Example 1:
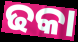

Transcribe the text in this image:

ଢକା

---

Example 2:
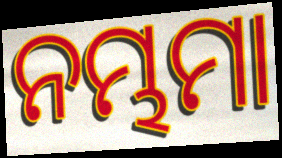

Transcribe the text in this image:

ନମ୍ଭମା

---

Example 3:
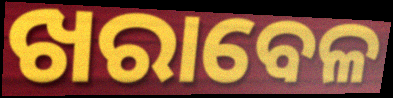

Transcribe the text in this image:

ଖରାବେଳ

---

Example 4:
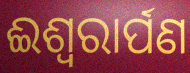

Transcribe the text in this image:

ଈଶ୍ୱରାର୍ପଣ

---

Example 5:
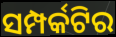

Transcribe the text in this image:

ସମ୍ପର୍କଟିର